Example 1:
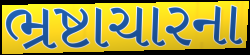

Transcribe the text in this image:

ભ્રષ્ટાચારના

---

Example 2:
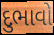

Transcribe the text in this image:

દુભાવો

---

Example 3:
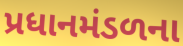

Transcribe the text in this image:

પ્રધાનમંડળના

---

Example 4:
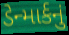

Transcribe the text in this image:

ડેન્માર્કનું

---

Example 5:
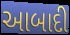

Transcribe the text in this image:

આબાદી